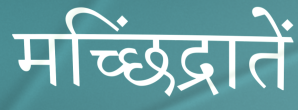
मच्छिंद्रातें